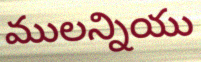
ములన్నియు